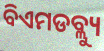
ବିଏମଡବ୍ଲ୍ୟୁ